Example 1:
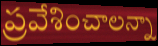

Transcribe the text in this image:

ప్రవేశించాలన్నా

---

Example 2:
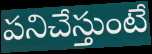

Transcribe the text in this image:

పనిచేస్తుంటే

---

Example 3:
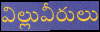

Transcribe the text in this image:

విల్లువీరులు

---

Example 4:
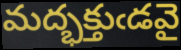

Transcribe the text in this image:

మద్భక్తుఁడవై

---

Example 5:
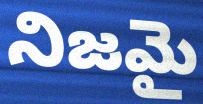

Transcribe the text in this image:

నిజమై